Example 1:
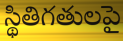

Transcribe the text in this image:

స్థితిగతులపై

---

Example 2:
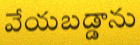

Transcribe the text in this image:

వేయబడ్డాను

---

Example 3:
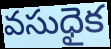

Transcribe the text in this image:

వసుధైక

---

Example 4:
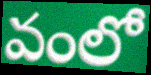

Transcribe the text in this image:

వంలో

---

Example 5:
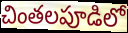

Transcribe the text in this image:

చింతలపూడిలో